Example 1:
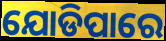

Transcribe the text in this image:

ଯୋଡିପାରେ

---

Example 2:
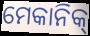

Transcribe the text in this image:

ମେକାନିକ୍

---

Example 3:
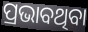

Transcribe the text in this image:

ପ୍ରଭାବଥିବା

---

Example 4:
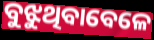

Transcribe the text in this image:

ବୁଝୁଥିବାବେଳେ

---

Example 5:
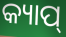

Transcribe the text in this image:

କ୍ୟାପ୍